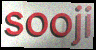
sooji